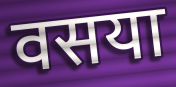
वसया